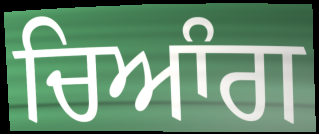
ਚਿਆੰਗ